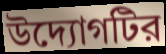
উদ্যোগটির